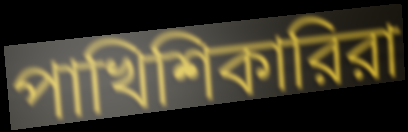
পাখিশিকারিরা